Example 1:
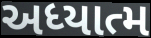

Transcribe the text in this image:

અધ્યાત્મ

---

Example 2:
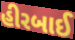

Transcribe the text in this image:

હીરબાઈ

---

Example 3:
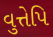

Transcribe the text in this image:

વુત્તેપિ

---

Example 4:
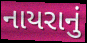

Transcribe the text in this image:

નાયરાનું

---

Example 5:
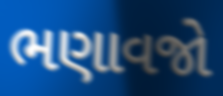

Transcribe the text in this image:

ભણાવજો